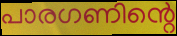
പാരഗണിന്റെ